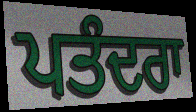
ਪਤੰਦਰਾ